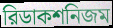
রিডাকশনিজম